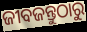
ଜୀବଜନ୍ତୁଠାରୁ